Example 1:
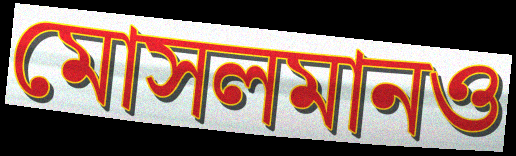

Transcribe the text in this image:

মোসলমানও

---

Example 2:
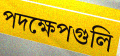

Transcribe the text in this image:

পদক্ষেপগুলি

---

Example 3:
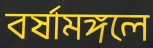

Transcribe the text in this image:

বর্ষামঙ্গলে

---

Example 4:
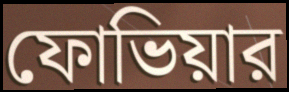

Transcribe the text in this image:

ফোভিয়ার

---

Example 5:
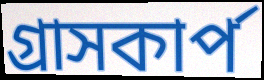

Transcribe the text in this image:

গ্রাসকার্প